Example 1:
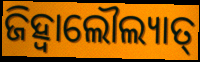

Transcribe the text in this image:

ଜିହ୍ଵାଲୌଲ୍ୟାତ୍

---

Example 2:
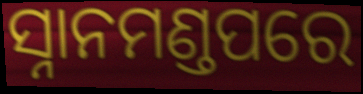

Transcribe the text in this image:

ସ୍ନାନମଣ୍ଡପରେ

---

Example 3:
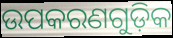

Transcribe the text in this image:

ଉପକରଣଗୁଡ଼ିକ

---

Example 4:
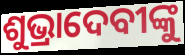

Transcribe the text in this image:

ଶୁଭ୍ରାଦେବୀଙ୍କୁ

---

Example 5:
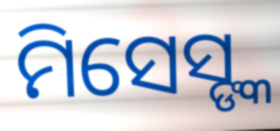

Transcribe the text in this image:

ମିସେସ୍ଙ୍କ